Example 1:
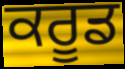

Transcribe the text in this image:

ਕਰੂਡ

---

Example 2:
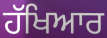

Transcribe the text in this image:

ਹੱਖਿਆਰ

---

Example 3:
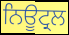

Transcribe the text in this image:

ਨਿਊਟ੍ਰਲ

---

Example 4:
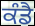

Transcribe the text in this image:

ਕੰਡੈ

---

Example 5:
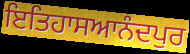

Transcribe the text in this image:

ਇਤਿਹਾਸਆਨੰਦਪੁਰ